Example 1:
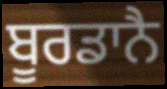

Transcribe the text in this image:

ਬੂਰਡਾਨੈ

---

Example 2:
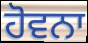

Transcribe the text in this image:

ਹੋਵਨਾ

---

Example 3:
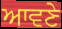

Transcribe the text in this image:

ਆਵਣੇ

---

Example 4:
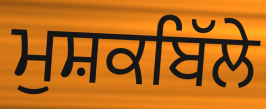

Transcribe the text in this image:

ਮੁਸ਼ਕਬਿੱਲੇ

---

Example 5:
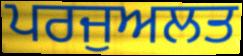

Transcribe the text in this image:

ਪਰਜੁਅਲਤ